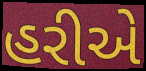
હરીએ